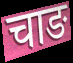
चाङ